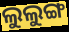
ଲୁଲୁଙ୍ଗ